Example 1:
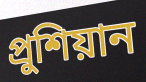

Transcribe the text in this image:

প্রুশিয়ান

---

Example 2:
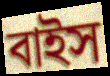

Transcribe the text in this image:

বাইস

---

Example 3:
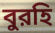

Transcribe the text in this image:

বুরহি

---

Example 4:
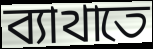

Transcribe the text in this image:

ব্যাথাতে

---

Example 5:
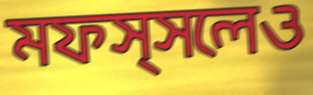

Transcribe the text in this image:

মফস্‌সলেও